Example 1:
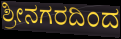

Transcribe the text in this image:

ಶ್ರೀನಗರದಿಂದ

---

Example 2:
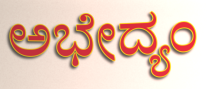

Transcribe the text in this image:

ಅಭೇದ್ಯಂ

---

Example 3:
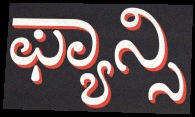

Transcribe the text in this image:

ಫ್ಯಾನ್ಸಿ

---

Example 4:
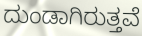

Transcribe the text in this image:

ದುಂಡಾಗಿರುತ್ತವೆ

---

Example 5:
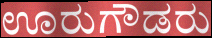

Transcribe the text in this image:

ಊರುಗೌಡರು